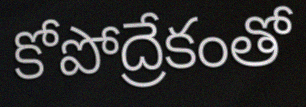
కోపోద్రేకంతో